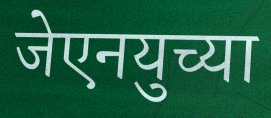
जेएनयुच्या